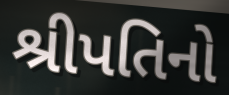
શ્રીપતિનો